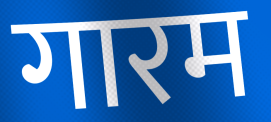
गारम